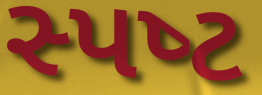
સ્પષ્‍ટ